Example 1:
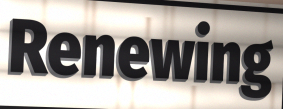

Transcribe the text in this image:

Renewing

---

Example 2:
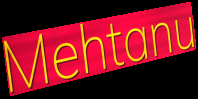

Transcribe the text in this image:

Mehtanu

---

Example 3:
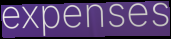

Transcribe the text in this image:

expenses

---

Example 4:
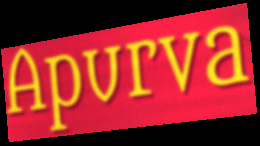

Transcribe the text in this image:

Apurva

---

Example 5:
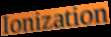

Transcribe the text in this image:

Ionization